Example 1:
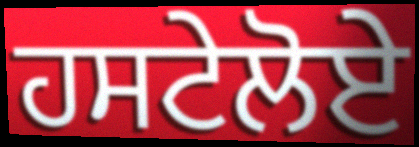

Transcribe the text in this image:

ਹਸਟੇਲੋਏ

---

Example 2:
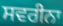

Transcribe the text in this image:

ਸਵਰੀਨਾ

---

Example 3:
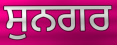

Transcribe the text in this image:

ਸੁਨਗਰ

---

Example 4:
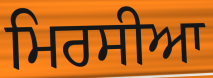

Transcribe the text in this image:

ਮਿਰਸੀਆ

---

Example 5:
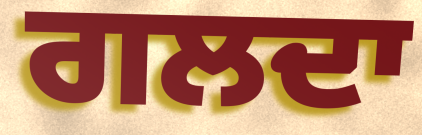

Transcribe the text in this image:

ਗਲਦਾ